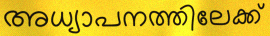
അധ്യാപനത്തിലേക്ക്